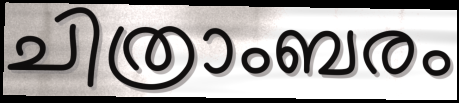
ചിത്രാംബരം